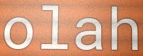
olah